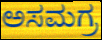
ಅಸಮಗ್ರ